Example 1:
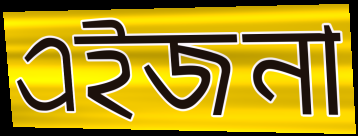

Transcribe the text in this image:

এইজনা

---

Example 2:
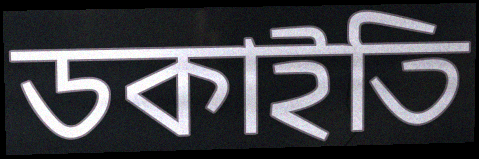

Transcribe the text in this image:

ডকাইতি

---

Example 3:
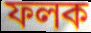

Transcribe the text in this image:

ফলক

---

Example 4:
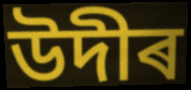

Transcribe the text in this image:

উদীৰ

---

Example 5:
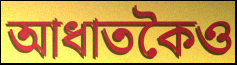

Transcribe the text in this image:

আধাতকৈও